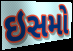
ઇસમો